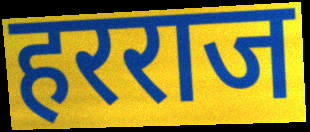
हरराज